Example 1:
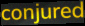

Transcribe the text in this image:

conjured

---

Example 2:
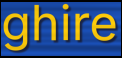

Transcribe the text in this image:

ghire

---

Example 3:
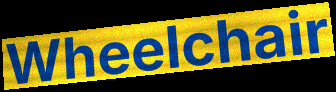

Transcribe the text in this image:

Wheelchair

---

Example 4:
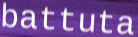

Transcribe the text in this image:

battuta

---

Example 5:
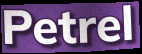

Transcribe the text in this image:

Petrel